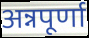
अन्नपूर्णा